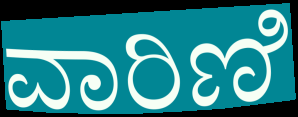
ವಾರಿಣಿ